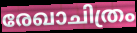
രേഖാചിത്രം